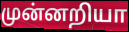
முன்னறியா